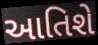
આતિશે